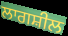
ਲਾਗਸ਼ੀਲ